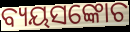
ବ୍ୟୟସଙ୍କୋଚ